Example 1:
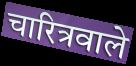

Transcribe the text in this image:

चारित्रवाले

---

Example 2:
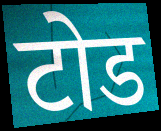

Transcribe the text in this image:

टोड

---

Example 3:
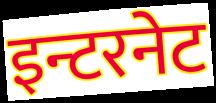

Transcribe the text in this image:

इन्‍टरनेट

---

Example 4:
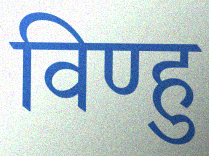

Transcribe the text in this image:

विण्हु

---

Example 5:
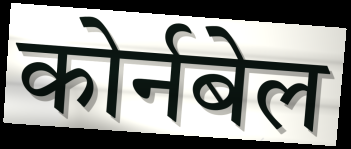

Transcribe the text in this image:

कोर्नबेल